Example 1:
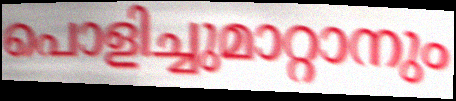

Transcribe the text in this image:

പൊളിച്ചുമാറ്റാനും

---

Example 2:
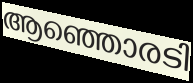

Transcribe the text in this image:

ആഞ്ഞൊരടി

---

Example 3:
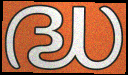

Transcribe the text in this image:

ദ്ധ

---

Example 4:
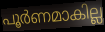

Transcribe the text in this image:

പൂർണമാകില്ല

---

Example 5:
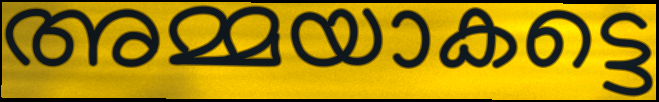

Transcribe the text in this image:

അമ്മയാകട്ടെ